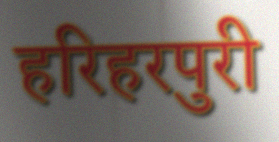
हरिहरपुरी